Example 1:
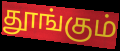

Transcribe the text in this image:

தூங்கும்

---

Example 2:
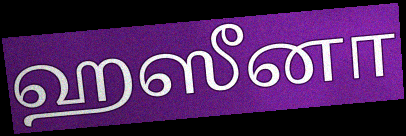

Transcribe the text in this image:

ஹஸீனா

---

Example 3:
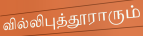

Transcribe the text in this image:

வில்லிபுத்தூராரும்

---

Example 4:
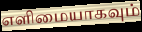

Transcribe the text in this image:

எளிமையாகவும்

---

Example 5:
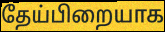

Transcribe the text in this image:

தேய்பிறையாக